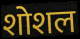
शोशल